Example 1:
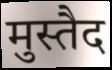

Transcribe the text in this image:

मुस्‍तैद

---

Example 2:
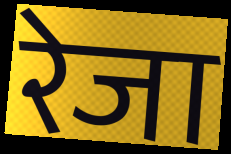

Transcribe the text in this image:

रेजा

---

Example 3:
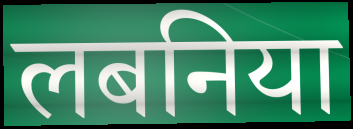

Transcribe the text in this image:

लबनिया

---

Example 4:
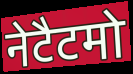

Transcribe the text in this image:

नेटैटमो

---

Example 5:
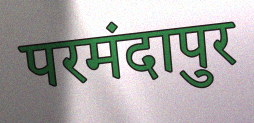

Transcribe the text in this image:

परमंदापुर